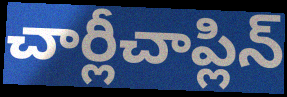
చార్లీచాప్లిన్